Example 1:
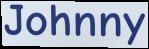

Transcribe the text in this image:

Johnny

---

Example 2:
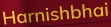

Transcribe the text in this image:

Harnishbhai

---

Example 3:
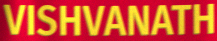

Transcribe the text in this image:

VISHVANATH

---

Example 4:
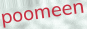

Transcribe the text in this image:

poomeen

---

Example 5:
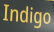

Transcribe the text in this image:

Indigo